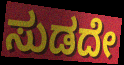
ಸುಡದೇ